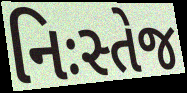
નિઃસ્તેજ